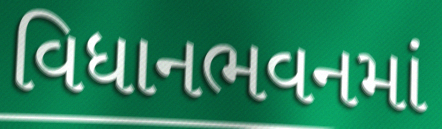
વિધાનભવનમાં